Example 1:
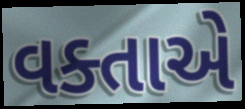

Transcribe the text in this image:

વક્તાએ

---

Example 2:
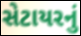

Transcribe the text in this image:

સેટાયરનું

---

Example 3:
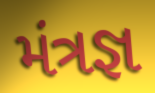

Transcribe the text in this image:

મંત્રજ્ઞ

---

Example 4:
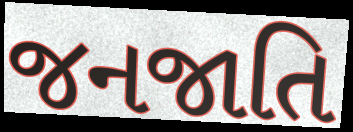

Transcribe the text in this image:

જનજાતિ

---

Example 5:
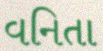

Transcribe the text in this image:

વનિતા